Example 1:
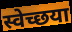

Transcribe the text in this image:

स्वेच्छया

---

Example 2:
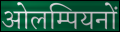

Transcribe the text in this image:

ओलम्पियनों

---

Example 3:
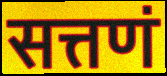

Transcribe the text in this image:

सत्तणं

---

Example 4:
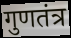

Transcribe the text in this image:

गुणतंत्र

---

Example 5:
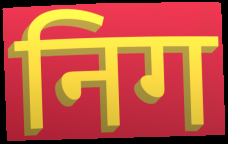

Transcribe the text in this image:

निग